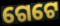
ଗେଟେ